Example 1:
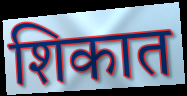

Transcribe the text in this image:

शिकात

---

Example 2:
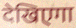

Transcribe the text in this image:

देखिएगा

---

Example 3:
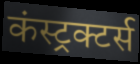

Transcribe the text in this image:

कंस्ट्रक्टर्स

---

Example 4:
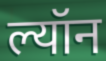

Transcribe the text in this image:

ल्यॉन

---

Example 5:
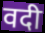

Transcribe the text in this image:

वदी